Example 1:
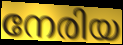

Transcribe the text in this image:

നേരിയ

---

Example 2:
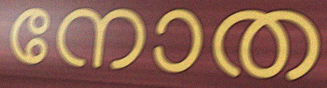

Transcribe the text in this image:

നോത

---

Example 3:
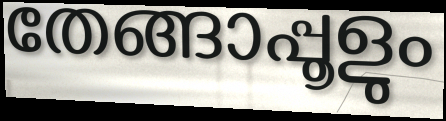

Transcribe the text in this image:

തേങ്ങാപ്പൂളും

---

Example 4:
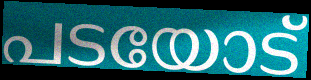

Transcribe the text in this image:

പടയോട്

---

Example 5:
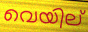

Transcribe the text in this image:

വെയില്